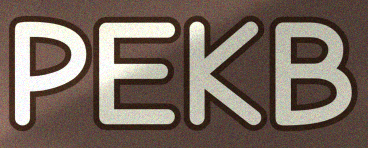
PEKB